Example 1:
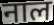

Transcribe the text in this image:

नाल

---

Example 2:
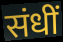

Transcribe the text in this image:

संधीं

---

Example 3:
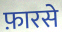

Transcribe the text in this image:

फ़ारसे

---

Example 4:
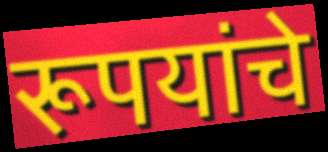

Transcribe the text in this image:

रूपयांचे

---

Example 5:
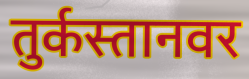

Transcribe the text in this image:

तुर्कस्तानवर